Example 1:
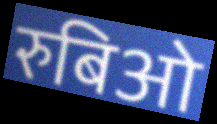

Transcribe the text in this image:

रुबिओ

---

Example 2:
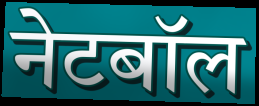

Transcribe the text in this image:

नेटबॉल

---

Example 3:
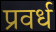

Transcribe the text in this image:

प्रवर्ध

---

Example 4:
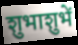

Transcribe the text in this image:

शुभाशुभें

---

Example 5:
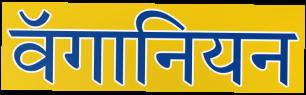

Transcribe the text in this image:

वॅगानियन